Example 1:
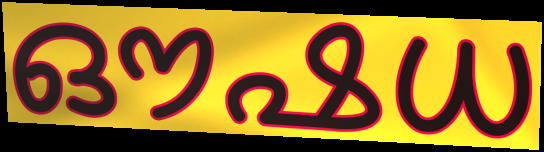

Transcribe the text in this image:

ഔഷധ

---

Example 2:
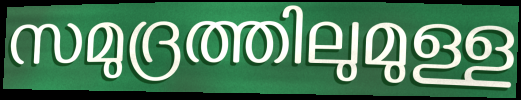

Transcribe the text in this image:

സമുദ്രത്തിലുമുള്ള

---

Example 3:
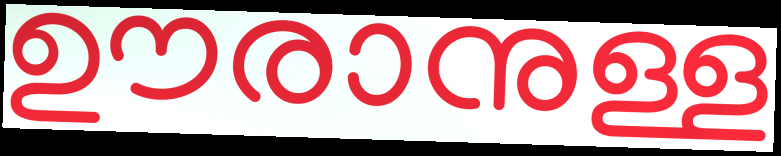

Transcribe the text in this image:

ഊരാനുള്ള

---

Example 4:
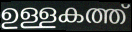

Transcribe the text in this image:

ഉള്ളകത്ത്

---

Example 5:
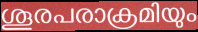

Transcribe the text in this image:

ശൂരപരാക്രമിയും